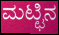
ಮಟ್ಟಿನ